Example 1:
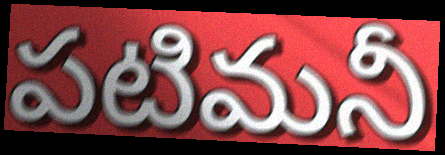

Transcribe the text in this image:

పటిమనీ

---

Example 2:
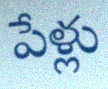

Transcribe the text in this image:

పేళ్లు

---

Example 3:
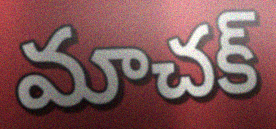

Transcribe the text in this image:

మాచక్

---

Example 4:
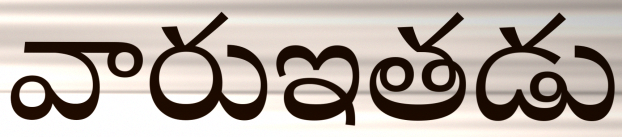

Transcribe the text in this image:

వారుఇతడు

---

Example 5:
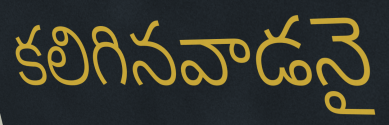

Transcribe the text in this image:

కలిగినవాడనై